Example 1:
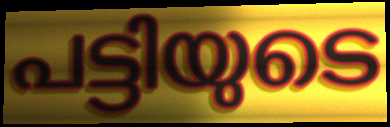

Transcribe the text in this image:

പട്ടിയുടെ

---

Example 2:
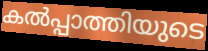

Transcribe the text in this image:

കൽപ്പാത്തിയുടെ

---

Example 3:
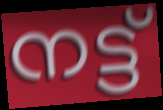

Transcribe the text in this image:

നട്ട്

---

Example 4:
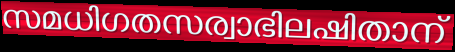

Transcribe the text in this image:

സമധിഗതസര്വാഭിലഷിതാന്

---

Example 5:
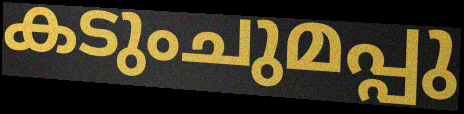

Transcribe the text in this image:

കടുംചുമപ്പു